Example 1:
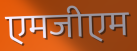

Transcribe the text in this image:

एमजीएम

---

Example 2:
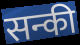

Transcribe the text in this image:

सन्की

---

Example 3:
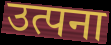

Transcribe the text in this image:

उत्पना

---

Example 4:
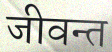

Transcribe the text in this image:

जीवन्त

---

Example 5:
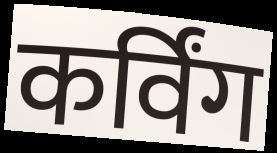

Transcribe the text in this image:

कर्विंग